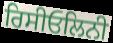
ਰਿਸੀਓਲਿਨੀ